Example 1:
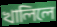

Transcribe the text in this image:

খালিলে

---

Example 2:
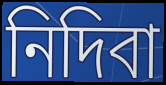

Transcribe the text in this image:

নিদিবা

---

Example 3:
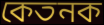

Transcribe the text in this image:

কেতনক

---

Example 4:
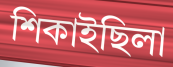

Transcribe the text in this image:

শিকাইছিলা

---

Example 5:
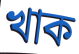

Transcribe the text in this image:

খাক